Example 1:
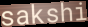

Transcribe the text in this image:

sakshi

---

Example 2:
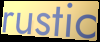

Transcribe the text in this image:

rustic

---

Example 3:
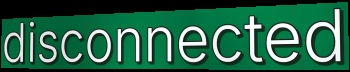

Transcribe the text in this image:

disconnected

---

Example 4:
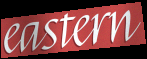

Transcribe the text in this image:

eastern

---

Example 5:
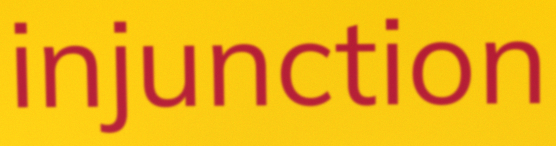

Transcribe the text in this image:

injunction